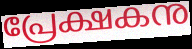
പ്രേക്ഷകനു